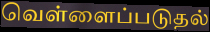
வெள்ளைப்படுதல்